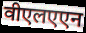
वीएलएएन